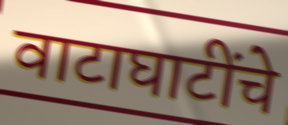
वाटाघाटींचे